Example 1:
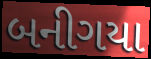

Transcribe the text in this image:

બનીગયા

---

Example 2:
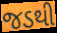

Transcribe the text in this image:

જડથી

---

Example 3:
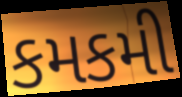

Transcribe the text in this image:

કમકમી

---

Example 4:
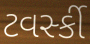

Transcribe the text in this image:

ટવર્સ્કી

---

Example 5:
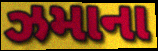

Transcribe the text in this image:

ઝમાના